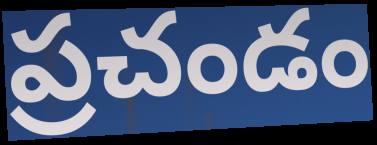
ప్రచండం